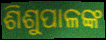
ଶିଶୁପାଳଙ୍କ